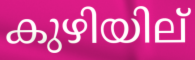
കുഴിയില്